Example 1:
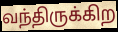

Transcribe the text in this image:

வந்திருக்கிற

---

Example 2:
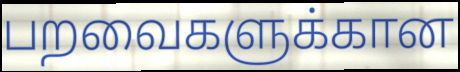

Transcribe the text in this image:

பறவைகளுக்கான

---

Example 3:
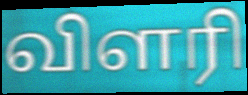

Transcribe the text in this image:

விளரி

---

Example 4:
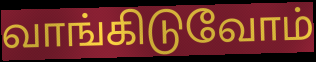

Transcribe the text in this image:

வாங்கிடுவோம்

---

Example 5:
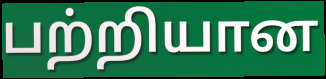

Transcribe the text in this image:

பற்றியான